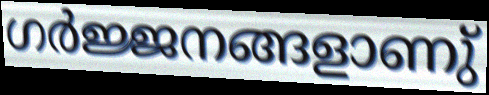
ഗർജ്ജനങ്ങളാണു്